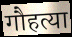
गौहत्या